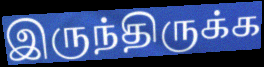
இருந்திருக்க